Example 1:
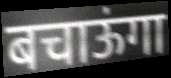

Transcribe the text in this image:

बचाऊंगा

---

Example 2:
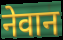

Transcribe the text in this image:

नेवान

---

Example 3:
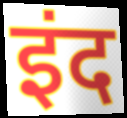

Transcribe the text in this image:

इंद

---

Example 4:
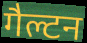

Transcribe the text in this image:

गैल्टन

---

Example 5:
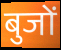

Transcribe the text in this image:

बुजों